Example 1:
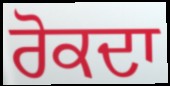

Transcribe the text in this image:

ਰੋਕਦਾ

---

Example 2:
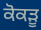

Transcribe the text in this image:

ਕੋਕੜੂ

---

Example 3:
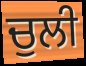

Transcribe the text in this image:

ਚੁਲੀ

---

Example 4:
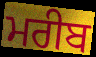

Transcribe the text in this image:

ਮਰੀਬ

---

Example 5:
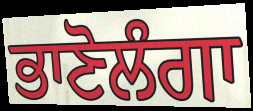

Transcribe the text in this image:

ਭਾਣੋਲੰਗਾ